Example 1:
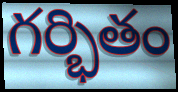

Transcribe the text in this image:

గర్భితం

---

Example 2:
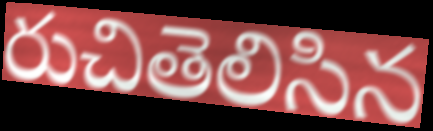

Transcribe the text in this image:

రుచితెలిసిన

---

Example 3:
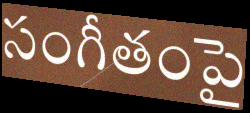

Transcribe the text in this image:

సంగీతంపై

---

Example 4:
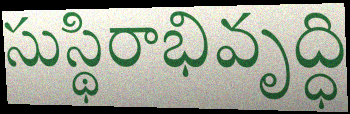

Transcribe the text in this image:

సుస్థిరాభివృద్ధి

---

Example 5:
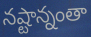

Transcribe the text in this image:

నష్టాన్నంతా